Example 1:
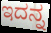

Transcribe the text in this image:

ಇದನ್ನ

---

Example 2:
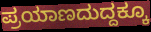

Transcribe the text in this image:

ಪ್ರಯಾಣದುದ್ದಕ್ಕೂ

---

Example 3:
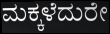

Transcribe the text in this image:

ಮಕ್ಕಳೆದುರೇ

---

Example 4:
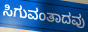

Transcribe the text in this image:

ಸಿಗುವಂತಾದವು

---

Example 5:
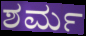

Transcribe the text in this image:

ಶರ್ಮ